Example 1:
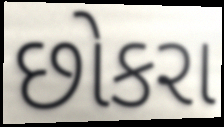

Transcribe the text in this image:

છોકરા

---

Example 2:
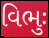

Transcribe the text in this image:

વિભુઃ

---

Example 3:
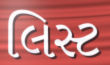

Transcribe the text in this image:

લિસ્ટ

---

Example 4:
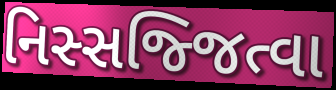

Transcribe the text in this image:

નિસ્સજ્જિત્વા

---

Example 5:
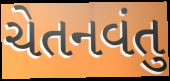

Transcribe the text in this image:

ચેતનવંતુ